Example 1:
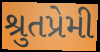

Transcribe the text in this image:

શ્રુતપ્રેમી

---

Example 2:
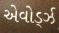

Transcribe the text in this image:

એવોર્ડ્ઝ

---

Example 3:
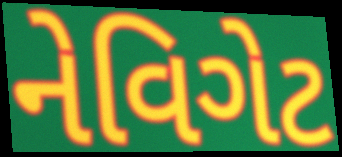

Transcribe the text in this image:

નેવિગેટ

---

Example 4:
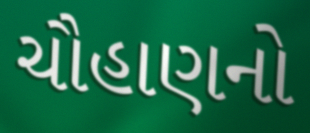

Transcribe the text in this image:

ચૌહાણનો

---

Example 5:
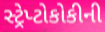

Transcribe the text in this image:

સ્ટ્રેપ્ટોકોકીની